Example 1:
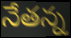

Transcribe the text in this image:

నేతన్న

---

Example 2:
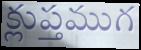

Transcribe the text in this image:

క్లుప్తముగ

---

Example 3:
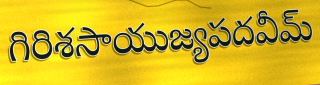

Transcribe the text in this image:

గిరిశసాయుజ్యపదవీమ్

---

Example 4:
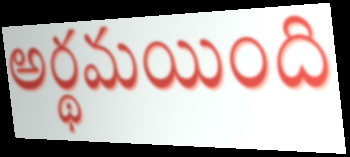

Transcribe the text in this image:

అర్థమయింది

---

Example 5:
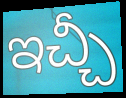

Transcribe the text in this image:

ఇచ్చీ